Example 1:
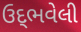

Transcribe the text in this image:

ઉદ્‌ભવેલી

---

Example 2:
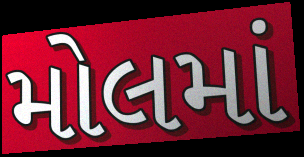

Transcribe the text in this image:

મોલમાં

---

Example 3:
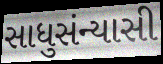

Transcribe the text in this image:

સાધુસંન્યાસી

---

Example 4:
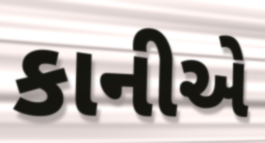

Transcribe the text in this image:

કાનીએ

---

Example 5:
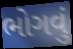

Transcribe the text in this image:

ભોગવું